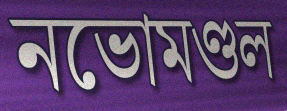
নভোমণ্ডল